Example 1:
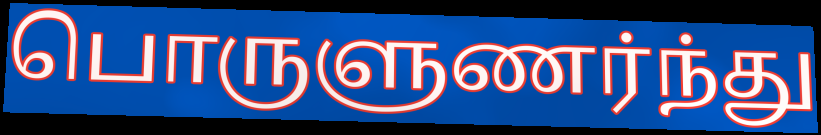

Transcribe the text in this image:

பொருளுணர்ந்து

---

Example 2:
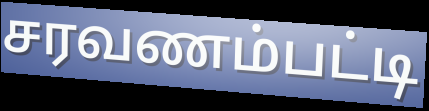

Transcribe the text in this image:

சரவணம்பட்டி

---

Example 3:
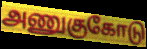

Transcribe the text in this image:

அணுகுகோடு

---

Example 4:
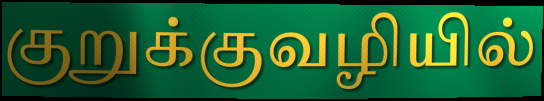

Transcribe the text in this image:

குறுக்குவழியில்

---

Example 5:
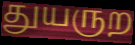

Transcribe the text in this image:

துயருற